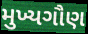
મુખ્યગૌણ